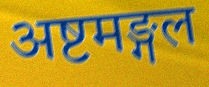
अष्टमङ्गल